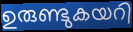
ഉരുണ്ടുകയറി